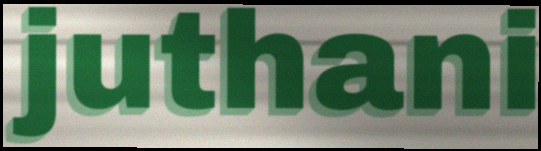
juthani